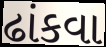
ઢાંકવા